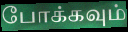
போக்கவும்